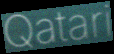
Qatari